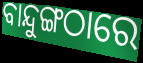
ବାନ୍ଦୁଙ୍ଗଠାରେ